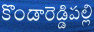
కొండారెడ్డిపల్లి